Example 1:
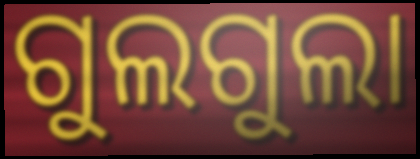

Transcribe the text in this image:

ଗୁଲଗୁଲା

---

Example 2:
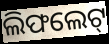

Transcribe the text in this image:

ଲିଫଲେଟ୍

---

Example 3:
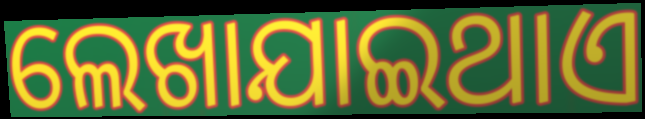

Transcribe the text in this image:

ଲେଖାଯାଇଥାଏ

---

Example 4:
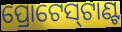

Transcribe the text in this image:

ପ୍ରୋଟେସ୍‌ଟାଣ୍ଟ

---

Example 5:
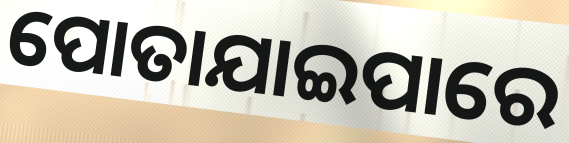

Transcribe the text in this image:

ପୋତାଯାଇପାରେ